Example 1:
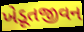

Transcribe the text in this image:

ખેડૂતજીવન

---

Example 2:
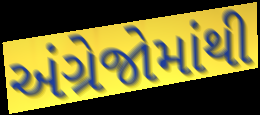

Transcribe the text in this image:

અંગ્રેજોમાંથી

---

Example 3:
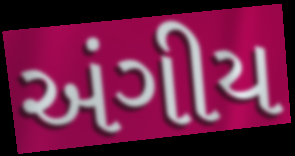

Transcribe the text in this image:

અંગીય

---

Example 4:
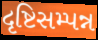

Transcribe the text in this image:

દૃષ્ટિસમ્પન્ન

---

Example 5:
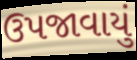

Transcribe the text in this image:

ઉપજાવાયું